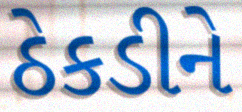
ઠેકડીને